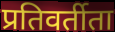
प्रतिवर्तीता